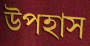
উপহাস